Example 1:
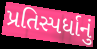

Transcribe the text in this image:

પ્રતિસ્પર્ધાનું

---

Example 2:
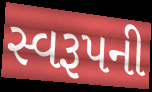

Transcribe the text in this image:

સ્વરૂપની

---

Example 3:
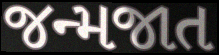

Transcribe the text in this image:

જન્મજાત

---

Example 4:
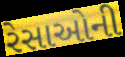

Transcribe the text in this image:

રેસાઓની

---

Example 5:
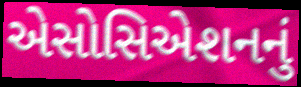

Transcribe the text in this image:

એસોસિએશનનું